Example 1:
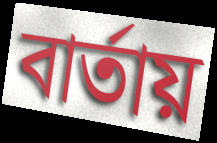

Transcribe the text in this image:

বার্তায়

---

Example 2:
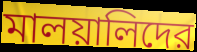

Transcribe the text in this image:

মালয়ালিদের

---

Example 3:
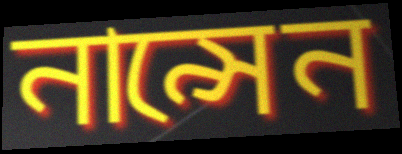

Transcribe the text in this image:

নান্সেন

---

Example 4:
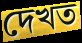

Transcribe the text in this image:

দেখত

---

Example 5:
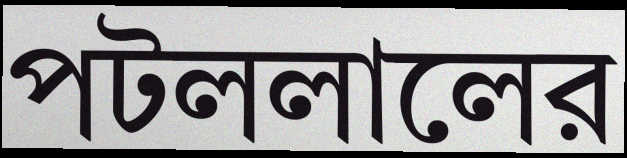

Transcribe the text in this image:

পটললালের